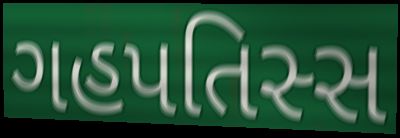
ગહપતિસ્સ